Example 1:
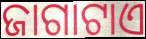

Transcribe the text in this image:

ଜାଗାଟାଏ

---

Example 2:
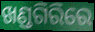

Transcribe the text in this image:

ଖଣ୍ଡଗିରିରେ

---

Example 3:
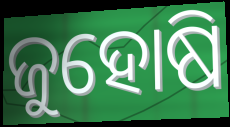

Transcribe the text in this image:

ଜୁହୋଷି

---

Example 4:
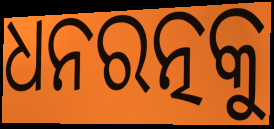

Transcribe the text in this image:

ଧନରତ୍ନକୁ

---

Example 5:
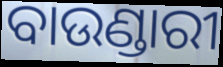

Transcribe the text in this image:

ବାଉଣ୍ଡାରୀ